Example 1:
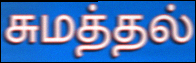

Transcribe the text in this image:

சுமத்தல்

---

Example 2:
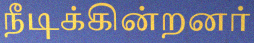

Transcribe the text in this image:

நீடிக்கின்றனர்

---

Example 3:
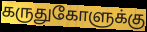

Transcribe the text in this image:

கருதுகோளுக்கு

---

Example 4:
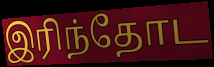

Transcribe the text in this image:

இரிந்தோட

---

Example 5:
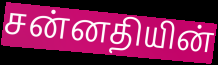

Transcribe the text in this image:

சன்னதியின்